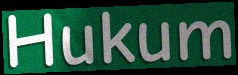
Hukum